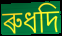
ৰুধদি